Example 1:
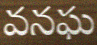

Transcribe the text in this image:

వనఘ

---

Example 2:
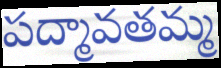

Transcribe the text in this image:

పద్మావతమ్మ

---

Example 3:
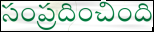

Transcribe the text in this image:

సంప్రదించింది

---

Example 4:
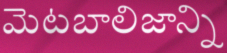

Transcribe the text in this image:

మెటబాలిజాన్ని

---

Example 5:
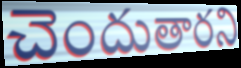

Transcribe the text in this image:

చెందుతారని